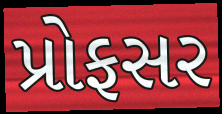
પ્રોફસર